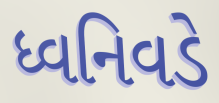
ધ્વનિવડે